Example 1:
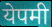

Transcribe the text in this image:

येपमी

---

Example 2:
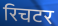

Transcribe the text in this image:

रिचटर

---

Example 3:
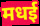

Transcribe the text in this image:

मधई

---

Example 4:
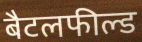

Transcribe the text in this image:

बैटलफील्ड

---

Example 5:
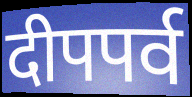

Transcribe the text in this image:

दीपपर्व